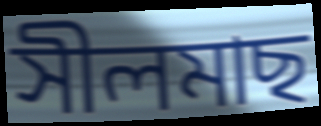
সীলমাছ